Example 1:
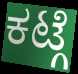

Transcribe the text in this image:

ಕಟ್ಗೆ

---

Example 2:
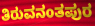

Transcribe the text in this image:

ತಿರುವನಂತಪುರ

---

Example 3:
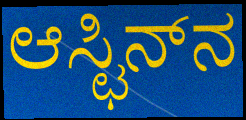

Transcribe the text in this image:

ಆಸ್ಟಿನ್‌ನ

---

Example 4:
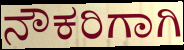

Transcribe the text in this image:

ನೌಕರಿಗಾಗಿ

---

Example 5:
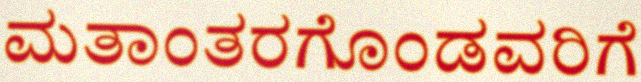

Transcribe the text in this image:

ಮತಾಂತರಗೊಂಡವರಿಗೆ